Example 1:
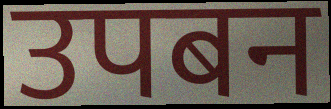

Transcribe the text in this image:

उपबन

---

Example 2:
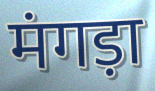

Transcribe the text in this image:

मंगड़ा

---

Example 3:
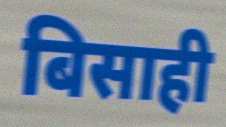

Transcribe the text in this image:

बिसाही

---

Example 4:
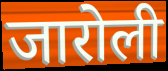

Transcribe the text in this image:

जारोली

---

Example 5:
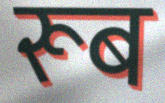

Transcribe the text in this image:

रूब